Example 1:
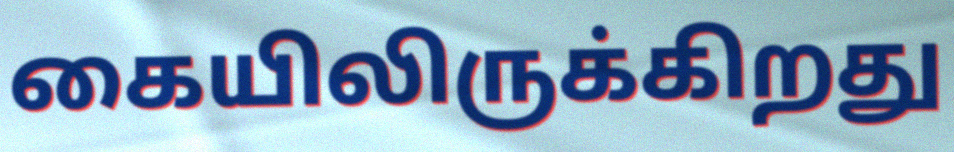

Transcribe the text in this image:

கையிலிருக்கிறது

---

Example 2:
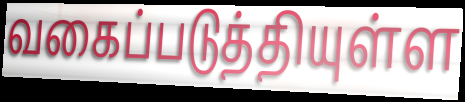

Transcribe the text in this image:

வகைப்படுத்தியுள்ள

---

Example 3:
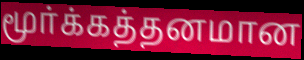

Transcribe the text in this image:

மூர்க்கத்தனமான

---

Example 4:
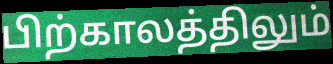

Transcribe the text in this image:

பிற்காலத்திலும்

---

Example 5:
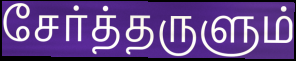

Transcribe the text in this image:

சேர்த்தருளும்